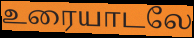
உரையாடலே